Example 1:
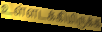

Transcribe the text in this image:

உள்ளடக்கியிருக்க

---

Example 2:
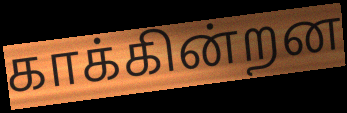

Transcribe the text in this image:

காக்கின்றன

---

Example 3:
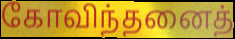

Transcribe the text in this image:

கோவிந்தனைத்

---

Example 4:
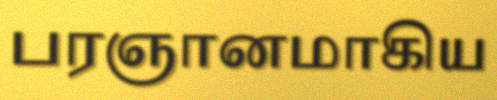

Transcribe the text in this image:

பரஞானமாகிய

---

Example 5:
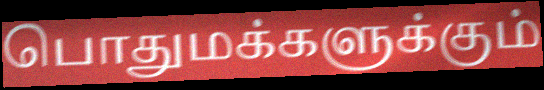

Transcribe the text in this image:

பொதுமக்களுக்கும்